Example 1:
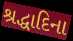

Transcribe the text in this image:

શ્રદ્ધાદિના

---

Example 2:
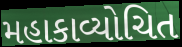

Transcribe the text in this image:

મહાકાવ્યોચિત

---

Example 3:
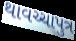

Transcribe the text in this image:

થાવચ્ચાપુત્ર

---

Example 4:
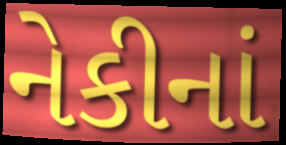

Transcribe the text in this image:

નેકીનાં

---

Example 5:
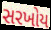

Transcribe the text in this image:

સરખોય